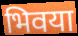
भिवया